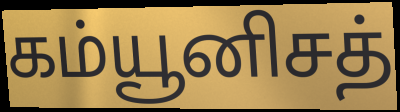
கம்யூனிசத்